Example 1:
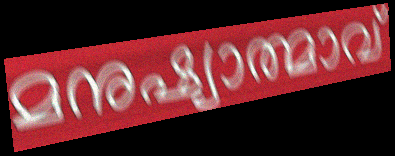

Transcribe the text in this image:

മനുഷ്യാത്മാവ്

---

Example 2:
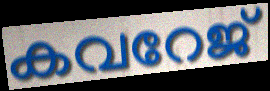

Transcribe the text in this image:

കവറേജ്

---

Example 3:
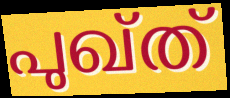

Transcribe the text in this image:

പുഖ്ത്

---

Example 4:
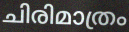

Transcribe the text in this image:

ചിരിമാത്രം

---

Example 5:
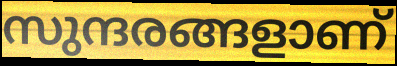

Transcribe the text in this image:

സുന്ദരങ്ങളാണ്